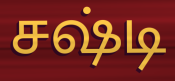
சஷ்டி